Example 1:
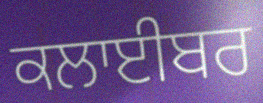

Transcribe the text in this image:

ਕਲਾਈਬਰ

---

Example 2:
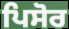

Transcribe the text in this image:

ਪਿਸੋਰ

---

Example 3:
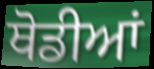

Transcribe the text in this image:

ਥੋਡੀਆਂ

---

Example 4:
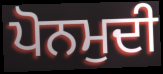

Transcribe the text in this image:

ਪੋਨਮੁਦੀ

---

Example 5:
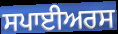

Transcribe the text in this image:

ਸਪਾਈਅਰਸ